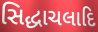
સિદ્ધાચલાદિ